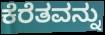
ಕೆರೆತವನ್ನು